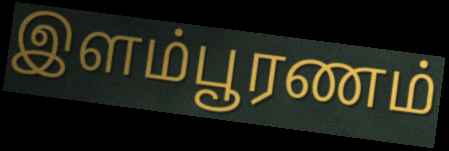
இளம்பூரணம்